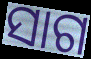
ସାଗ